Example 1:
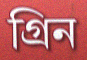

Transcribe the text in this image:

গ্রিন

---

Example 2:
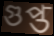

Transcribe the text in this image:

গুপ্ত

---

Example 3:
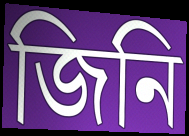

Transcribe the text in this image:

জিনি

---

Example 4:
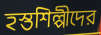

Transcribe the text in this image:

হস্তশিল্পীদের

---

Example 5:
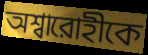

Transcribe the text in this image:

অশ্বারোহীকে